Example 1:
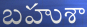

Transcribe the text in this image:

బహుశా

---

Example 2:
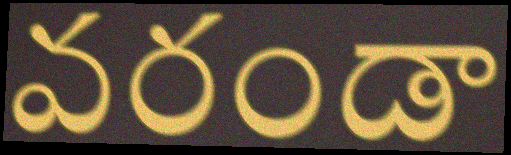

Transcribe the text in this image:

వరండా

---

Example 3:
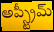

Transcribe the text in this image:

అప్స్ట్రీమ్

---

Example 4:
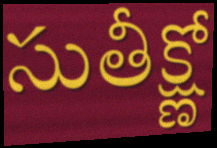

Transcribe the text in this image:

సుతీక్ష్ణో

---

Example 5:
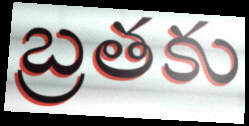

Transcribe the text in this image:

బ్రతకు